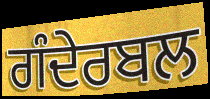
ਗੰਦੇਰਬਲ